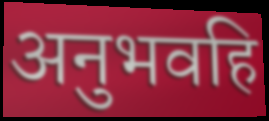
अनुभवहि